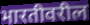
भारतीवरील